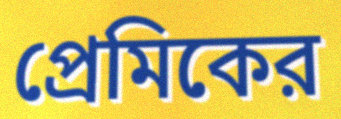
প্রেমিকের